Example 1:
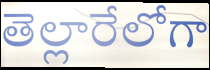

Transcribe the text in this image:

తెల్లారేలోగా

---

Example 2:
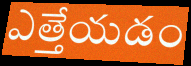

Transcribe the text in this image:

ఎత్తేయడం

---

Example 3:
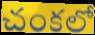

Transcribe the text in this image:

చంకలో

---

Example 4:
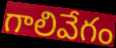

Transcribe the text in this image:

గాలివేగం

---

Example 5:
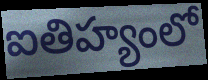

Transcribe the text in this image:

ఐతిహ్యంలో